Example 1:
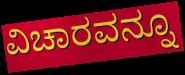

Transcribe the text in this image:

ವಿಚಾರವನ್ನೂ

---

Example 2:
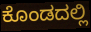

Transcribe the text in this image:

ಕೊಂಡದಲ್ಲಿ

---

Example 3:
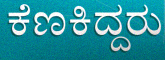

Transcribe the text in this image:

ಕೆಣಕಿದ್ದರು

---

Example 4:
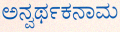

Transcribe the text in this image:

ಅನ್ವರ್ಥಕನಾಮ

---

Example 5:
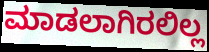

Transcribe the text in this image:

ಮಾಡಲಾಗಿರಲಿಲ್ಲ